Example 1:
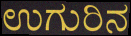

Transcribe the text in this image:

ಉಗುರಿನ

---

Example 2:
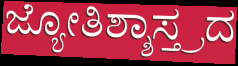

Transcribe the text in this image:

ಜ್ಯೋತಿಶ್ಶಾಸ್ತ್ರದ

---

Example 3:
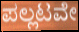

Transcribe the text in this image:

ಪಲ್ಲಟವೇ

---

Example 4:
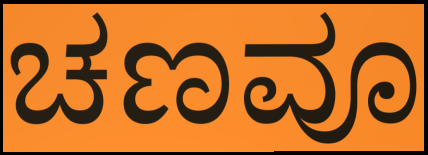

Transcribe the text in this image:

ಚಣವೂ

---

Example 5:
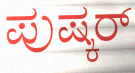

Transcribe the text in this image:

ಪುಷ್ಕರ್